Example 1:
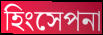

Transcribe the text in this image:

হিংসেপনা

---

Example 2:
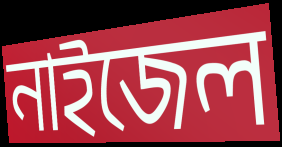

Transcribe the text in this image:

নাইজেল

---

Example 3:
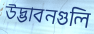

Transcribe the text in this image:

উদ্ভাবনগুলি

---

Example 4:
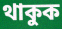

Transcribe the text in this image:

থাকুক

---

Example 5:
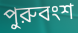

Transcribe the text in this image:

পুরুবংশ